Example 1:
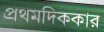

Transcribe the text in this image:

প্রথমদিককার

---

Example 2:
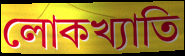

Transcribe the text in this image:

লোকখ্যাতি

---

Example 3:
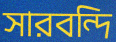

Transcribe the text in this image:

সারবন্দি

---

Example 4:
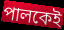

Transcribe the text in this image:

পালকেই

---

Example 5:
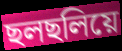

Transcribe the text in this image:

ছলছলিয়ে